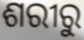
ଶରୀରୁ